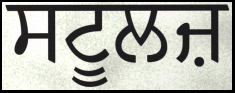
ਸਟੂਲਜ਼